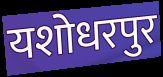
यशोधरपुर